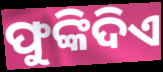
ଫୁଙ୍କିଦିଏ